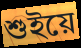
শুইয়ে